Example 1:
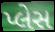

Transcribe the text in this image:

પ્લેસ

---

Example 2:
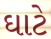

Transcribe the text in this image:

ઘાટે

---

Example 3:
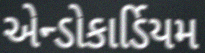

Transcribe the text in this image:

એન્ડોકાર્ડિયમ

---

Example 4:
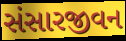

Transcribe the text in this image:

સંસારજીવન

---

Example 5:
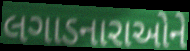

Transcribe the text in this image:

લગાડનારાઓને